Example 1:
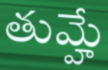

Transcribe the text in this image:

తుమ్హే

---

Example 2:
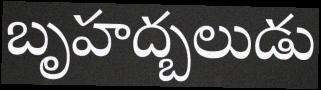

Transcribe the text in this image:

బృహద్బలుడు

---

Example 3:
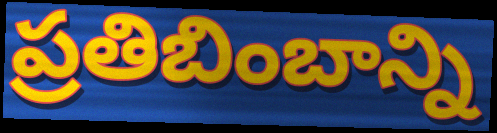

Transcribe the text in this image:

ప్రతిబింబాన్ని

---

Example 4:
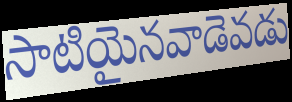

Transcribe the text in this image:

సాటియైనవాడెవడు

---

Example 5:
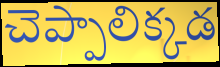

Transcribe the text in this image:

చెప్పాలిక్కడ